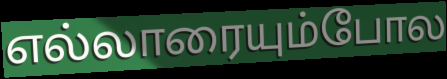
எல்லாரையும்போல